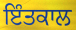
ਇੰਤਕਾਲ